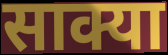
साक्या